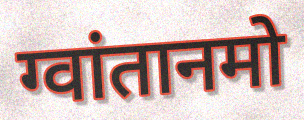
ग्वांतानमो